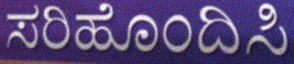
ಸರಿಹೊಂದಿಸಿ